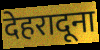
देहरादूना